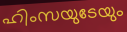
ഹിംസയുടേയും